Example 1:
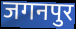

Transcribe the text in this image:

जगनपुर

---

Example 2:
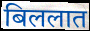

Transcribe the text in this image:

बिललात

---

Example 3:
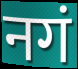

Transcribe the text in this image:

नगं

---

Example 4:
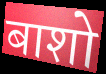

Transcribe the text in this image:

बाशो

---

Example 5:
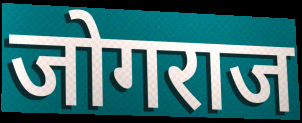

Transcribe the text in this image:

जोगराज